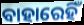
ବାହାରେହିଁ